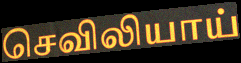
செவிலியாய்